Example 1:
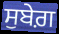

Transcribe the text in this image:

ਸੁਬੇਗ਼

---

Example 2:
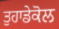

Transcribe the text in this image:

ਤੁਹਾਡੇਕੋਲ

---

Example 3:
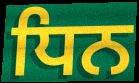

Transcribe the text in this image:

ਧਿਨ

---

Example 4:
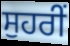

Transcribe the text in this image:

ਸੁਹਰੀਂ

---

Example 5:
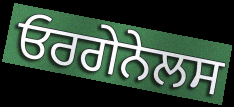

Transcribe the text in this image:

ਓਰਗੇਨੇਲਸ